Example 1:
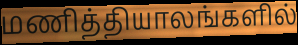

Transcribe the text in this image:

மணித்தியாலங்களில்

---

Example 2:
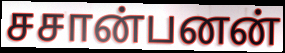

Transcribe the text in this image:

சசான்பனன்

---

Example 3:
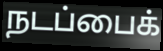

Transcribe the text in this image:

நடப்பைக்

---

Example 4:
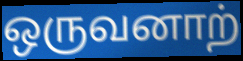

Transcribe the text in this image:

ஒருவனாற்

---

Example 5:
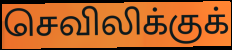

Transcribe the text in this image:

செவிலிக்குக்